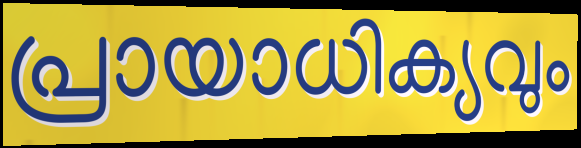
പ്രായാധിക്യവും